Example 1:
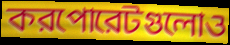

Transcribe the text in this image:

করপোরেটগুলোও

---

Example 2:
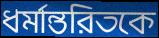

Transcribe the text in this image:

ধর্মান্তরিতকে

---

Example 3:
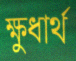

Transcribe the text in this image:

ক্ষুধার্থ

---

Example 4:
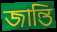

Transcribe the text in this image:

জান্তি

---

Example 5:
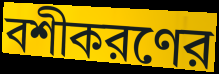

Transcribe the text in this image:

বশীকরণের